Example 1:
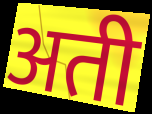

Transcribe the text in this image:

अती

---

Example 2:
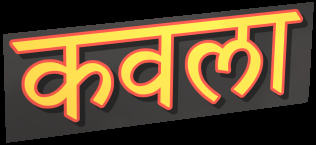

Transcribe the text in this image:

कवला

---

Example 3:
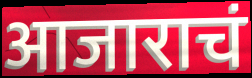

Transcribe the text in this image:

आजाराचं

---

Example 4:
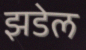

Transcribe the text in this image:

झडेल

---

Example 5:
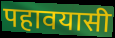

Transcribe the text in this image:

पहावयासी